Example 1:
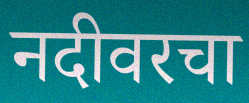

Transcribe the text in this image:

नदीवरचा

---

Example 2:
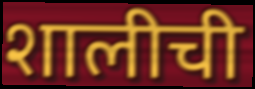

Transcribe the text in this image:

शालीची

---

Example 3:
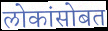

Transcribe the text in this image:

लोकांसोबत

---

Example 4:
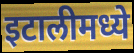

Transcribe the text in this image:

इटालीमध्ये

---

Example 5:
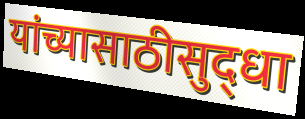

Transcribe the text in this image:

यांच्यासाठीसुद्धा